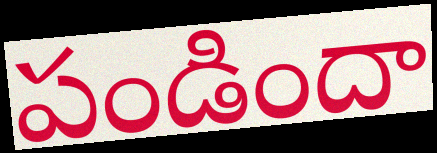
పండిందా